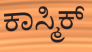
ಕಾಸ್ಮಿಕ್